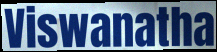
Viswanatha